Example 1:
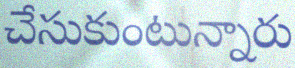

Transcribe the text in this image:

చేసుకుంటున్నారు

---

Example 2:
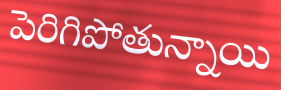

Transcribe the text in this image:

పెరిగిపోతున్నాయి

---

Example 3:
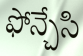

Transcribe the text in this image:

ఫోన్చేసి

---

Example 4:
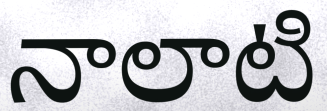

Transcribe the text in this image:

నాలాటి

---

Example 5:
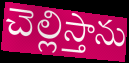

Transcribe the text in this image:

చెల్లిస్తాను